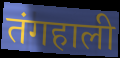
तंगहाली